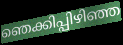
ഞെക്കിപ്പിഴിഞ്ഞ